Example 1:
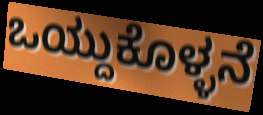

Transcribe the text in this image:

ಒಯ್ದುಕೊಳ್ಳನೆ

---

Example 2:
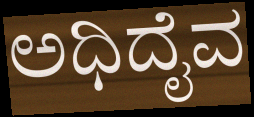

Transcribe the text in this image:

ಅಧಿದೈವ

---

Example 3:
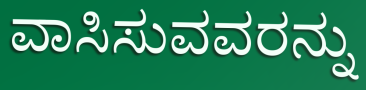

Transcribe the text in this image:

ವಾಸಿಸುವವರನ್ನು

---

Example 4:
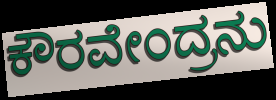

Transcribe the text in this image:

ಕೌರವೇಂದ್ರನು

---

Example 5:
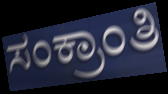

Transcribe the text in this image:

ಸಂಕ್ರಾಂತಿ